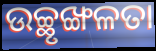
ଉଚ୍ଛୃଙ୍ଖଳତା